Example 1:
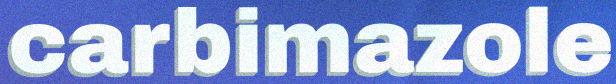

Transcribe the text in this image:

carbimazole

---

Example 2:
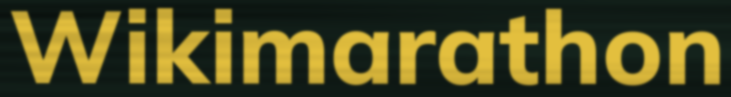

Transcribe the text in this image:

Wikimarathon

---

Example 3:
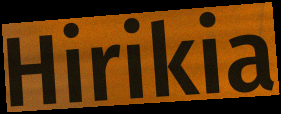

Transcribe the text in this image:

Hirikia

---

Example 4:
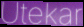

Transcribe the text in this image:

Utekar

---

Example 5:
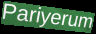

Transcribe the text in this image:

Pariyerum